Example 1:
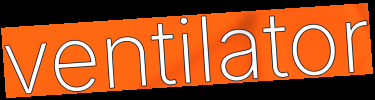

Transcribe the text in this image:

ventilator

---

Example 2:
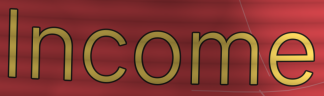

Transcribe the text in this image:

Income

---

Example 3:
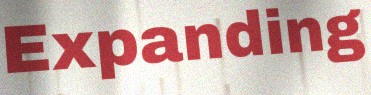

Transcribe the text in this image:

Expanding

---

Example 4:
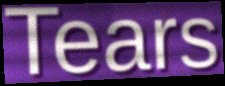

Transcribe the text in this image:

Tears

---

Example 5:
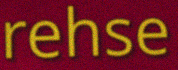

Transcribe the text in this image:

rehse